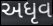
અધૃવ